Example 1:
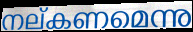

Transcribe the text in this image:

നല്‌കണമെന്നു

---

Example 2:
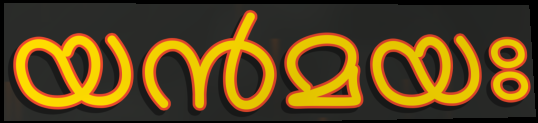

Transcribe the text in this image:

യൻമയഃ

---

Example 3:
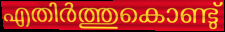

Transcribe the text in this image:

എതിർത്തുകൊണ്ടു്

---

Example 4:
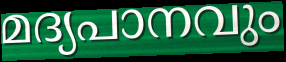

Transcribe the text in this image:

മദ്യപാനവും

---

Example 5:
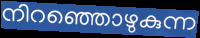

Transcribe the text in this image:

നിറഞ്ഞൊഴുകുന്ന